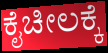
ಕೈಚೀಲಕ್ಕೆ